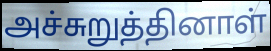
அச்சுறுத்தினாள்